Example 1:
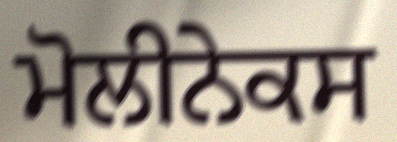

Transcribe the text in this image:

ਮੋਲੀਨੇਕਸ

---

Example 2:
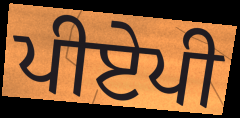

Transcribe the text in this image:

ਪੀਏਪੀ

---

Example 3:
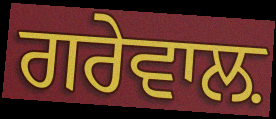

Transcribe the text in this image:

ਗਰੇਵਾਲ਼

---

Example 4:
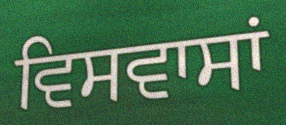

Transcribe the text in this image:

ਵਿਸਵਾਸਾਂ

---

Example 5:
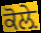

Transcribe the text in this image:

ਕੋਲ਼ੇ